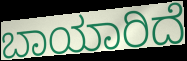
ಬಾಯಾರಿದೆ